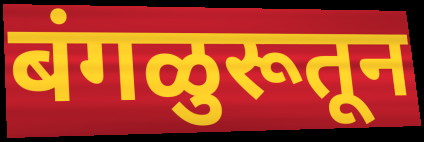
बंगळुरूतून